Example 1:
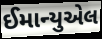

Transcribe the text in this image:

ઈમાન્યુએલ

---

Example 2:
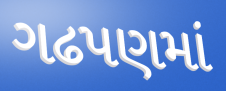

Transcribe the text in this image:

ગઢપણમાં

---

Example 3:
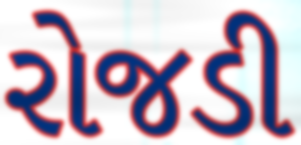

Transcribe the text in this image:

રોજડી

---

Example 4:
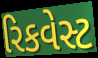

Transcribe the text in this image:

રિકવેસ્ટ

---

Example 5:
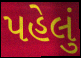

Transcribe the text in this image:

પહેલું